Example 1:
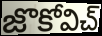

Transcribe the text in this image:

జొకోవిచ్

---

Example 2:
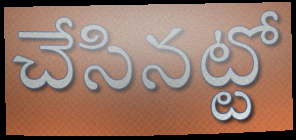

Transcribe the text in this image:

చేసినట్టో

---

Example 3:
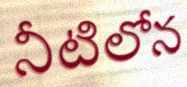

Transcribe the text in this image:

నీటిలోన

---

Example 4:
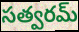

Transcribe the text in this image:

సత్వరమ్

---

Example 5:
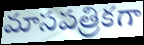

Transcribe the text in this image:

మాసపత్రికగా